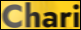
Chari